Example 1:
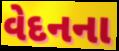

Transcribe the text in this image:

વેદનના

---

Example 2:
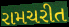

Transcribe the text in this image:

રામચરીત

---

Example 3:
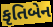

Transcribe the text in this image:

કૃતિબેન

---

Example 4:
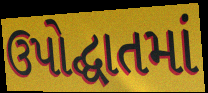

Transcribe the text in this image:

ઉપોદ્ઘાતમાં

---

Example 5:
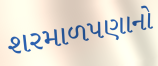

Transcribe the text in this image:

શરમાળપણાનો